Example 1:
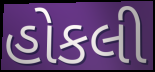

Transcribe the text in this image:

હોકલી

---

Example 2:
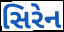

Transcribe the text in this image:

સિરેન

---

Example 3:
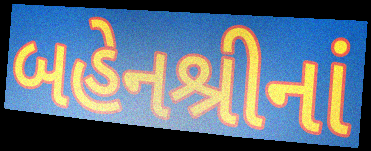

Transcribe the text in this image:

બહેનશ્રીનાં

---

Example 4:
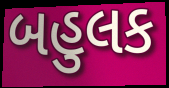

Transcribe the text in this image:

બહુલક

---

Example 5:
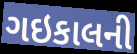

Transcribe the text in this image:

ગઇકાલની